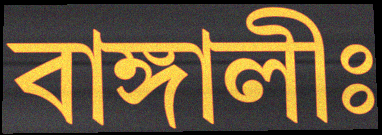
বাঙ্গালীঃ